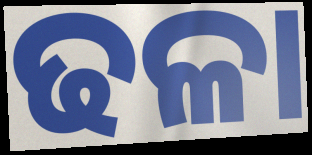
ଢଳା